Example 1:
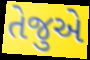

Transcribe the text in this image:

તેજુએ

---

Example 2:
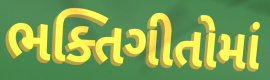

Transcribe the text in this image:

ભક્તિગીતોમાં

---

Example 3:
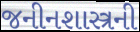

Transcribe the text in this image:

જનીનશાસ્ત્રની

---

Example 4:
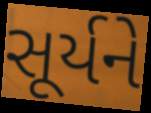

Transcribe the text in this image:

સૂર્યને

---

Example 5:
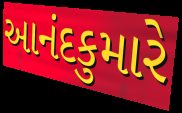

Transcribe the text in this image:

આનંદકુમારે